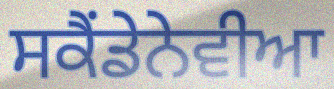
ਸਕੈਂਡੇਨੇਵੀਆ